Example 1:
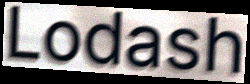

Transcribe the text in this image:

Lodash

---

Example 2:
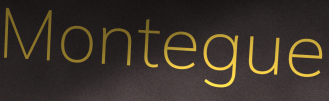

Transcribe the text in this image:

Montegue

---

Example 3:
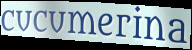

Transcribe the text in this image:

cucumerina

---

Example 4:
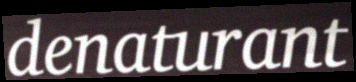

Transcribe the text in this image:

denaturant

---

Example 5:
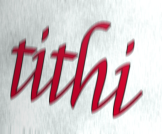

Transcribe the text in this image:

tithi